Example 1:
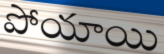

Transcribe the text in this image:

పోయాయి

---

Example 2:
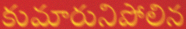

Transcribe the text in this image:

కుమారునిపోలిన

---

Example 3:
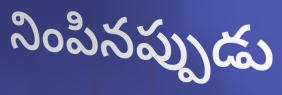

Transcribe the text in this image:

నింపినప్పుడు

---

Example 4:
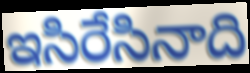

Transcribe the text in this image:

ఇసిరేసినాది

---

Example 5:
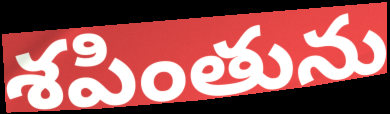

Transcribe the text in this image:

శపింతును